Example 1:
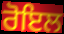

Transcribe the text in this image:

ਰੋਇਲ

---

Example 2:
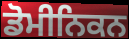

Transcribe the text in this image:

ਡੋਮੀਨਿਕਨ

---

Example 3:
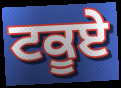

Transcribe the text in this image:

ਟਕੂਏ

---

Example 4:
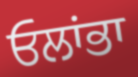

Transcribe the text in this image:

ਓਲਾਂਭਾ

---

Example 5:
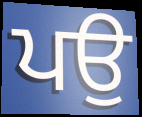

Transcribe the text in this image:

ਪਉ